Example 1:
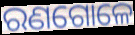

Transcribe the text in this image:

ରଣଗୋଳେ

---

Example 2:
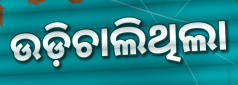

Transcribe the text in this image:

ଉଡ଼ିଚାଲିଥିଲା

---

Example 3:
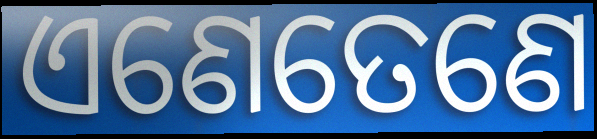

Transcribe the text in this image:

ଏଣେତେଣେ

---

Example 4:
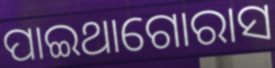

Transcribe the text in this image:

ପାଇଥାଗୋରାସ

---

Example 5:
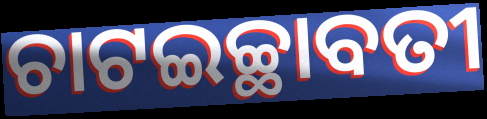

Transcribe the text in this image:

ଚାଟଇଚ୍ଛାବତୀ